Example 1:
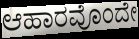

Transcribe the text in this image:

ಆಹಾರವೊಂದೇ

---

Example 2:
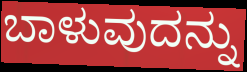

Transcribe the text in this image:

ಬಾಳುವುದನ್ನು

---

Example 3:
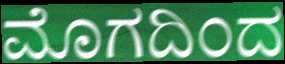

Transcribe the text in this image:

ಮೊಗದಿಂದ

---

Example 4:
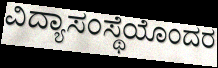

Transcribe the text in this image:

ವಿದ್ಯಾಸಂಸ್ಥೆಯೊಂದರ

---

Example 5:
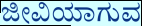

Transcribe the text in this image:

ಜೀವಿಯಾಗುವ